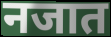
नजात